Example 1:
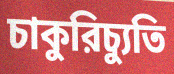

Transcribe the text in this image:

চাকুরিচ্যুতি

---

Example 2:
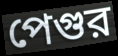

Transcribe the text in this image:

পেগুর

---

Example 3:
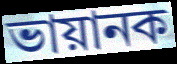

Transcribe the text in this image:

ভায়ানক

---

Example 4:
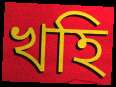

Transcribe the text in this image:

খহি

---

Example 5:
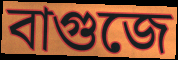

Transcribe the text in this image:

বাগুজে